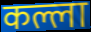
कल्ला